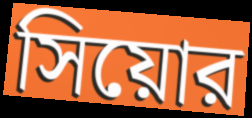
সিয়োর